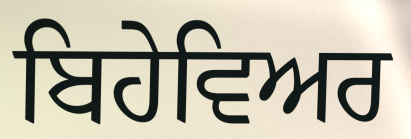
ਬਿਹੇਵਿਅਰ